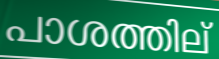
പാശത്തില്